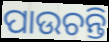
ପାଉଚନ୍ତି